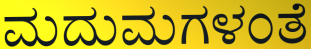
ಮದುಮಗಳಂತೆ